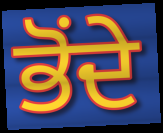
ਭੋਂਦੇ